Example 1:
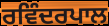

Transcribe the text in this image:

ਰਵਿੰਦਰਪਾਲ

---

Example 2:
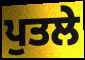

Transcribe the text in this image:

ਪੁਤਲੇ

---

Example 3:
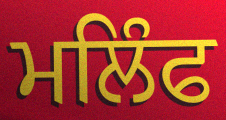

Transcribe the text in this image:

ਮਲਿੰਫ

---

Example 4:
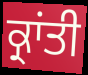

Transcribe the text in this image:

ਕ੍ਰਾਂਤੀ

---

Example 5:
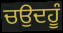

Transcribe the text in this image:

ਚਉਦਹੂੰ